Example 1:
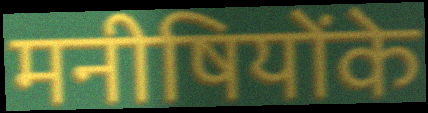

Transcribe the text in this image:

मनीषियोंके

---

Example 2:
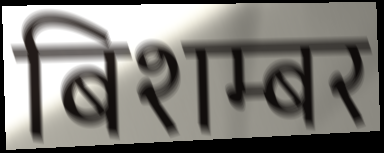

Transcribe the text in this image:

बिशम्बर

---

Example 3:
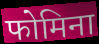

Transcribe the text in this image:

फोमिना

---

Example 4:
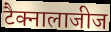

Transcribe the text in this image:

टैक्नालाजीज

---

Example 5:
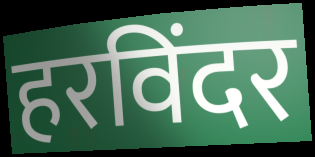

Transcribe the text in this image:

हरविंदर